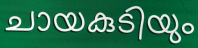
ചായകുടിയും